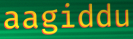
aagiddu